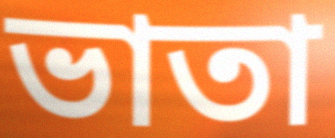
ভাতা